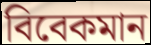
বিবেকমান